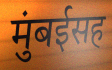
मुंबईसह